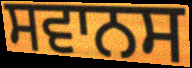
ਸਵਾਨਸ